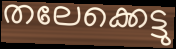
തലേക്കെട്ടു